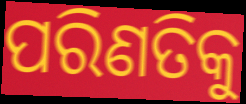
ପରିଣତିକୁ